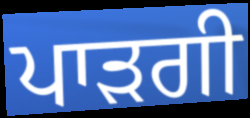
ਪਾੜਗੀ